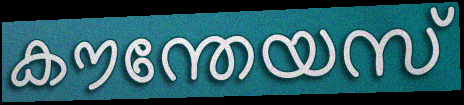
കൗന്തേയസ്